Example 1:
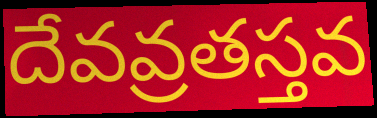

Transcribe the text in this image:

దేవవ్రతస్తవ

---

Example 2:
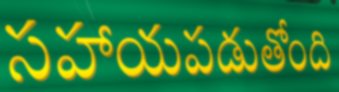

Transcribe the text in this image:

సహాయపడుతోంది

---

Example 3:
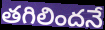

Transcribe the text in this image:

తగిలిందనే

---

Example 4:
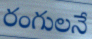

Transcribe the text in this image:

రంగులనే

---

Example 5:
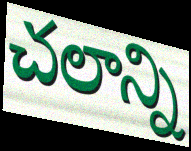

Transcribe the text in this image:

చలాన్ని